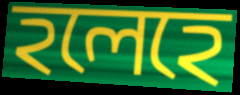
হলেহে